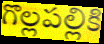
గొల్లపల్లికి